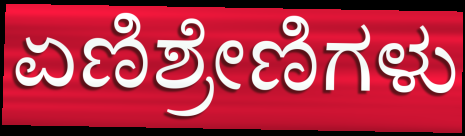
ಏಣಿಶ್ರೇಣಿಗಳು